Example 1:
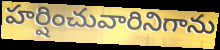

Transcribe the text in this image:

హర్షించువారినిగాను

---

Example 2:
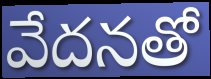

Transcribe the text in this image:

వేదనతో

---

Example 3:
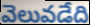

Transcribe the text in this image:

వెలువడేది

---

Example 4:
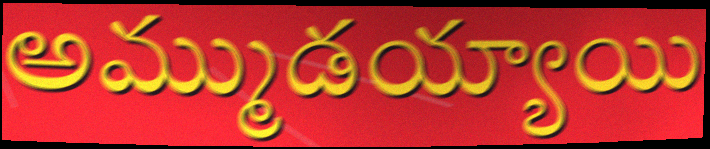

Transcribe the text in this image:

అమ్ముడయ్యాయి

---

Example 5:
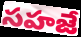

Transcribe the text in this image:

సహజే